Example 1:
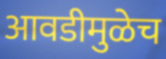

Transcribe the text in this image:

आवडीमुळेच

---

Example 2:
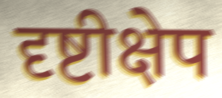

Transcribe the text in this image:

दृष्टीक्षेप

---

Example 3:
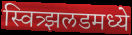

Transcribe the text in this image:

स्वित्र्झलडमध्ये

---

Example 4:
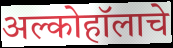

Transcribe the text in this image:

अल्कोहॉलाचे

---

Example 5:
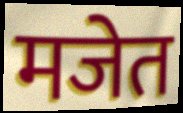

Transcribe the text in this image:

मजेत